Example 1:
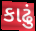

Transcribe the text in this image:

કાઢું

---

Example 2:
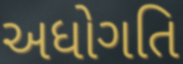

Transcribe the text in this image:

અધોગતિ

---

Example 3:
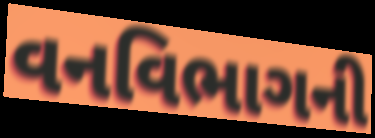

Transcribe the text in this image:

વનવિભાગની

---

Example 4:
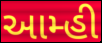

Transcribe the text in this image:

આમ્હી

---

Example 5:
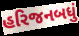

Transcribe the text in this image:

હરિજનબધું